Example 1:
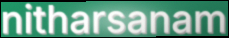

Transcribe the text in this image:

nitharsanam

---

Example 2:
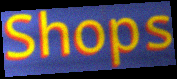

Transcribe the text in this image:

Shops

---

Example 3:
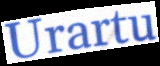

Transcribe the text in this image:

Urartu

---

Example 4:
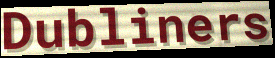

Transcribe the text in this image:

Dubliners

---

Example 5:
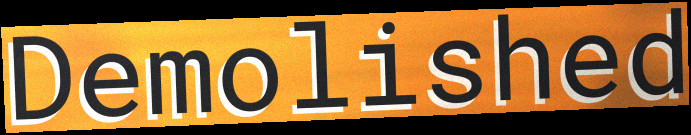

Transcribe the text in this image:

Demolished